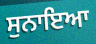
ਸੁਨਾਇਆ